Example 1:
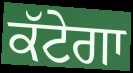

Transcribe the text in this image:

ਕੱਟੇਗਾ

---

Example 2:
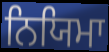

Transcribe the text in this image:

ਨਿਯਿਮਾ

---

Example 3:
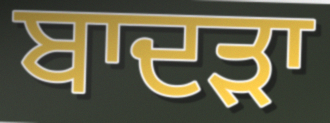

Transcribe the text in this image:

ਬਾਦੜਾ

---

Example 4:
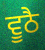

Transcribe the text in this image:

ਵੂਠੈ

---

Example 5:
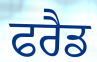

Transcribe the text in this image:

ਫਰੈਡ